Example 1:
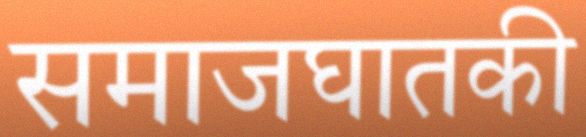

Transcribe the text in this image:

समाजघातकी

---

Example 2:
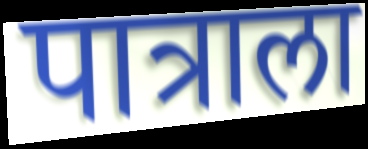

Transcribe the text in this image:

पात्राला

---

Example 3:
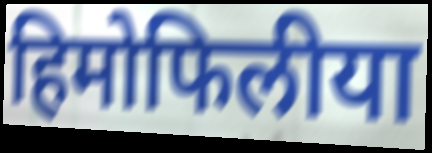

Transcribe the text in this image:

हिमोफिलीया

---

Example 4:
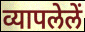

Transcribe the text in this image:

व्यापलेलें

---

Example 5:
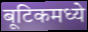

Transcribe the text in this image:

बूटिकमध्ये